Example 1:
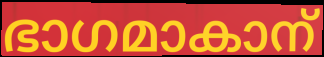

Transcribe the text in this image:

ഭാഗമാകാന്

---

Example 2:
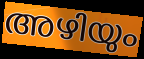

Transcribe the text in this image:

അഴിയും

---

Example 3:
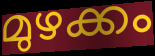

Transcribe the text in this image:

മുഴക്കം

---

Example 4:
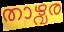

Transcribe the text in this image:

താഴ്വര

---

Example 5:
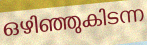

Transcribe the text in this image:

ഒഴിഞ്ഞുകിടന്ന